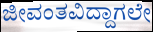
ಜೀವಂತವಿದ್ದಾಗಲೇ